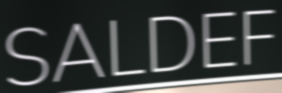
SALDEF